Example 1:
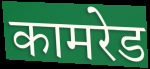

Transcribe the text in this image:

कामरेड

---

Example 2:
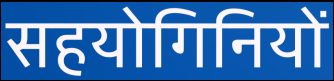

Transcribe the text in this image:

सहयोगिनियों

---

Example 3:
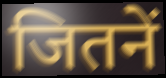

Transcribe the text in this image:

जितनें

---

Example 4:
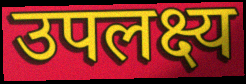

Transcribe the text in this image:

उपलक्ष्य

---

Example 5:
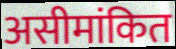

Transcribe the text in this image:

असीमांकित